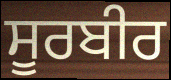
ਸੂਰਬੀਰ